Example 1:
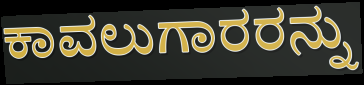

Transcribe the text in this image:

ಕಾವಲುಗಾರರನ್ನು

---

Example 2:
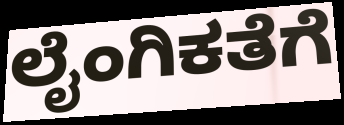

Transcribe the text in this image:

ಲೈಂಗಿಕತೆಗೆ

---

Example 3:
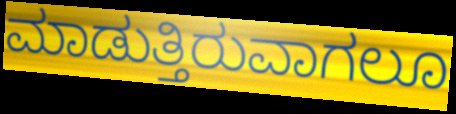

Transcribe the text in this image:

ಮಾಡುತ್ತಿರುವಾಗಲೂ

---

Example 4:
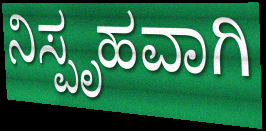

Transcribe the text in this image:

ನಿಸ್ಪೃಹವಾಗಿ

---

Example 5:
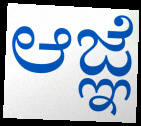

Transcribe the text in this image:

ಆಜ್ಞೆ